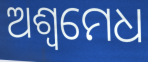
ଅଶ୍ଵମେଧ